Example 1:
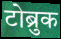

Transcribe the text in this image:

टोब्रुक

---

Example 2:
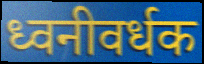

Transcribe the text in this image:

ध्वनीवर्धक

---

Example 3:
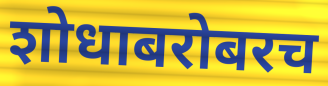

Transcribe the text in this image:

शोधाबरोबरच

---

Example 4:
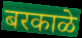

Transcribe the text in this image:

बरकाळे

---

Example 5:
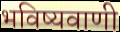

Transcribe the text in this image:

भविष्यवाणी